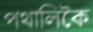
পথালিকৈ